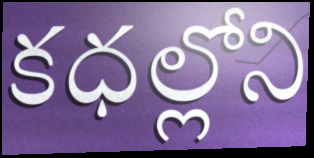
కధల్లోని